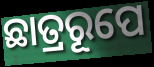
ଛାତ୍ରରୂପେ